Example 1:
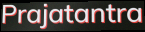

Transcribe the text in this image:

Prajatantra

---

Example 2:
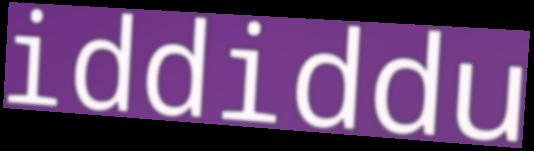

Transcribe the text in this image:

iddiddu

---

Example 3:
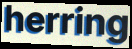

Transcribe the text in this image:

herring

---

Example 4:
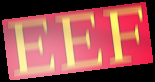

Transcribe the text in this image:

EEF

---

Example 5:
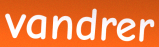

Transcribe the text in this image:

vandrer